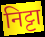
निट्टा